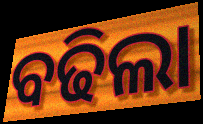
ବଢିଲା